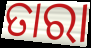
ତାରା